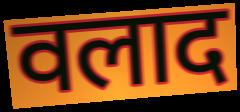
वलाद